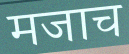
मजाच